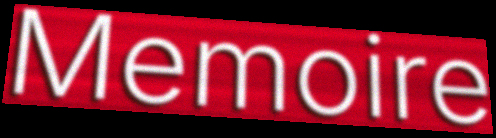
Memoire